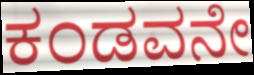
ಕಂಡವನೇ